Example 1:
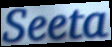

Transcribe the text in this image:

Seeta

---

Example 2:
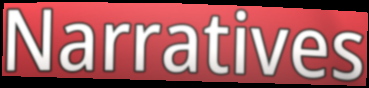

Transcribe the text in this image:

Narratives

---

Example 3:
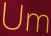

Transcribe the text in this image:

Um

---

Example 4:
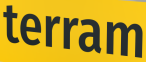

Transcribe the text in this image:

terram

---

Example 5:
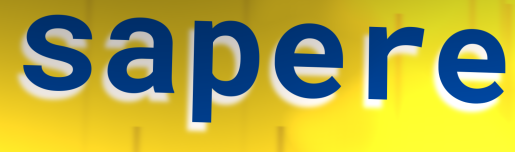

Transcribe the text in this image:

sapere